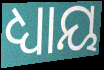
ଧ୍ୟାୟ